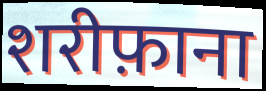
शरीफ़ाना